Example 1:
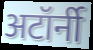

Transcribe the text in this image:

अटॉर्नी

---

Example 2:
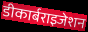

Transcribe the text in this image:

डीकार्बराइजेशन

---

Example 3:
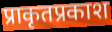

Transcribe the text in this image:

प्राकृतप्रकाश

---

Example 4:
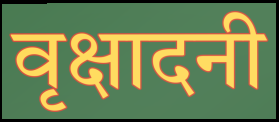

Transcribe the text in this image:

वृक्षादनी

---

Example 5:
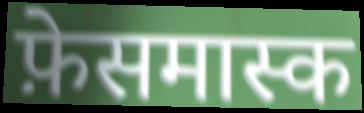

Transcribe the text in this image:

फ़ेसमास्क